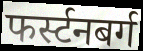
फर्स्टनबर्ग